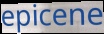
epicene